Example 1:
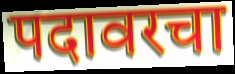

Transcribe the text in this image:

पदावरचा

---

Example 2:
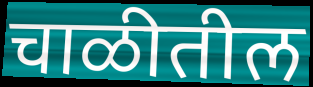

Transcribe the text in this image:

चाळीतील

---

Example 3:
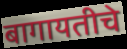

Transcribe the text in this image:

बागायतीचे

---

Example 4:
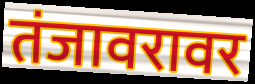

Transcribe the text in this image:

तंजावरावर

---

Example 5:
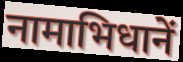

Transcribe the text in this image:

नामाभिधानें